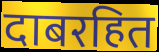
दाबरहित